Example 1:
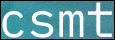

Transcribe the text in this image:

csmt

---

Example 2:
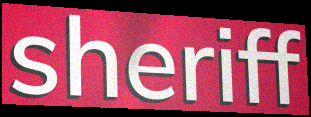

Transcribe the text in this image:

sheriff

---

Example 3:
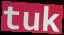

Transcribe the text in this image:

tuk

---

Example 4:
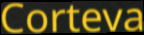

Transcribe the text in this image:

Corteva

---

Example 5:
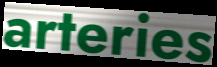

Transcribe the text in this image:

arteries